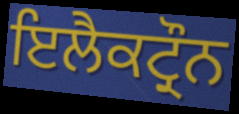
ਇਲੈਕਟ੍ਰੌਨ